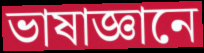
ভাষাজ্ঞানে